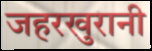
जहरखुरानी